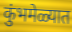
कुंभमेळ्यात